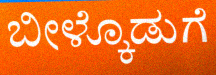
ಬೀಳ್ಕೊಡುಗೆ